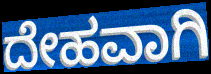
ದೇಹವಾಗಿ